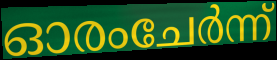
ഓരംചേർന്ന്